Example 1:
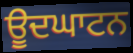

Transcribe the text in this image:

ਊਦਘਾਟਨ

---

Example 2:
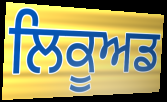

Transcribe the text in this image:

ਲਿਕੂਅਡ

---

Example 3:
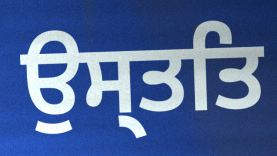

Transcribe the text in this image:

ਉਸ੍ਤਤਿ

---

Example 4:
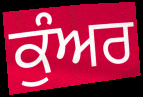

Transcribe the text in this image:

ਕੁੰਅਰ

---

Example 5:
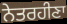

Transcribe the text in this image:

ਨੇਤਰਹੀਣਾ